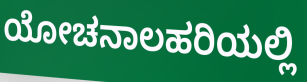
ಯೋಚನಾಲಹರಿಯಲ್ಲಿ